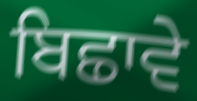
ਬਿਛਾਵੇ